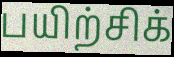
பயிற்சிக்